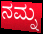
ನಮ್ನ